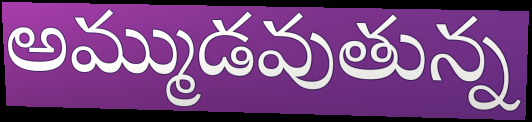
అమ్ముడవుతున్న